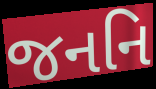
જનનિ